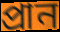
প্ৰান